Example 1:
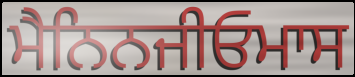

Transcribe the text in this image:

ਮੈਨਿਨਜੀਓਮਾਸ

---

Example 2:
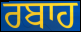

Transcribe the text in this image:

ਰਬਾਹ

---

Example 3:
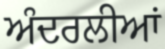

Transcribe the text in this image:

ਅੰਦਰਲੀਆਂ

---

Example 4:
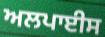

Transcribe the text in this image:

ਅਲਪਾਈਸ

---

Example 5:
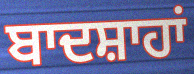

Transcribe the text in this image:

ਬਾਦਸ਼ਾਹਾਂ